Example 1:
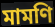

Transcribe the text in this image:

মামণি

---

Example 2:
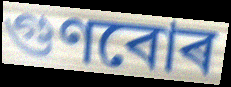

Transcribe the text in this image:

গুণবোৰ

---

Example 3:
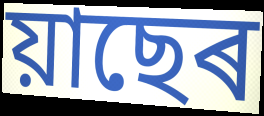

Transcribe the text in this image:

য়াছেৰ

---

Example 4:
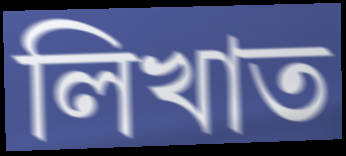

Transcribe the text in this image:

লিখাত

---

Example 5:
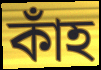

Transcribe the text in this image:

কাঁহ